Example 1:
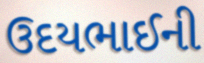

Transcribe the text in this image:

ઉદયભાઈની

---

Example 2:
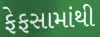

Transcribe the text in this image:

ફેફસામાંથી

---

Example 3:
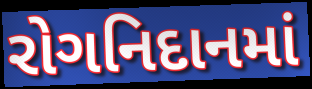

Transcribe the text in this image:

રોગનિદાનમાં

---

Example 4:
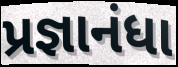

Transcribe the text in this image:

પ્રજ્ઞાનંધા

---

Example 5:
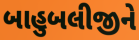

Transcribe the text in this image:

બાહુબલીજીને